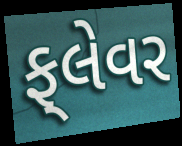
ફ્‌લેવર